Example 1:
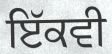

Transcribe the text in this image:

ਇੱਕਵੀ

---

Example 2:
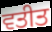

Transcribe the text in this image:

ਵਤੀਤ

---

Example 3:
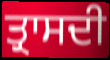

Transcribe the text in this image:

ਤ੍ਰਾਸਦੀ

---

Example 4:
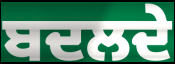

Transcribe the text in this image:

ਬਦਲਦੇ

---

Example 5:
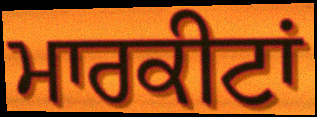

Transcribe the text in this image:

ਮਾਰਕੀਟਾਂ